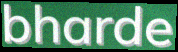
bharde